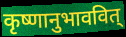
कृष्णानुभाववित्